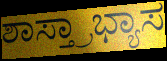
ಶಾಸ್ತ್ರಾಭ್ಯಾಸ